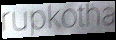
rupkotha